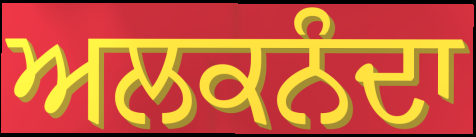
ਅਲਕਨੰਦਾ